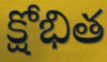
క్షోభిత